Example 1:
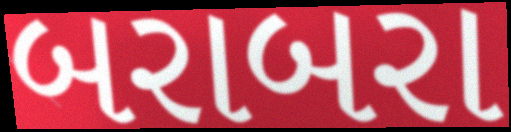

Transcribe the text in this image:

બરાબરા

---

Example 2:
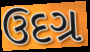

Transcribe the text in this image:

ઉદગ્ર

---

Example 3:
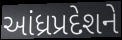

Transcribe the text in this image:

આંધ્રપ્રદેશને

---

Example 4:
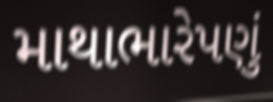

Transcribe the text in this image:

માથાભારેપણું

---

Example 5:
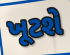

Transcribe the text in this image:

ખૂટશે